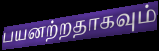
பயனற்றதாகவும்